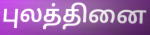
புலத்தினை